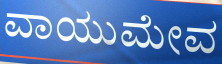
ವಾಯುಮೇವ